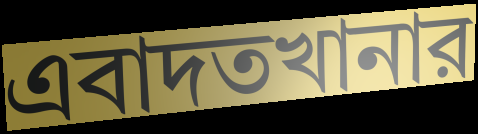
এবাদতখানার